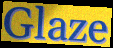
Glaze